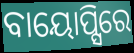
ବାୟୋପ୍ସିରେ